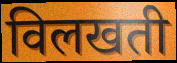
विलखती